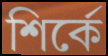
শির্কে